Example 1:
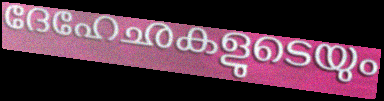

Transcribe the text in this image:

ദേഹേഛകളുടെയും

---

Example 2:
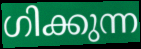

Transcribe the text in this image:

ഗിക്കുന്ന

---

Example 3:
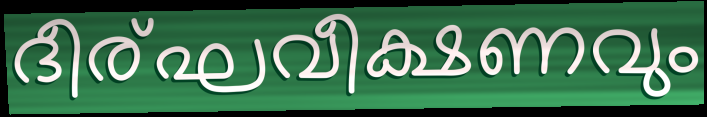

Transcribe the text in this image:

ദീര്ഘവീക്ഷണവും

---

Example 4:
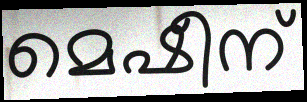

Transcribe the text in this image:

മെഷീന്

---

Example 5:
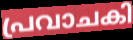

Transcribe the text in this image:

പ്രവാചകി